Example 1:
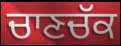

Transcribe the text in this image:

ਚਾਣਚੱਕ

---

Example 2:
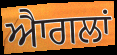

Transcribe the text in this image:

ਐਾਗਲਾਂ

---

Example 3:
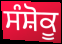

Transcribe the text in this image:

ਸੰਸ਼ੋਕੂ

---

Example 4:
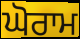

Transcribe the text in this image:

ਘੋਰਾਮ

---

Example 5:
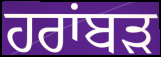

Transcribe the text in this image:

ਹਰਾਂਬੜ